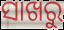
ସାଖରୁ